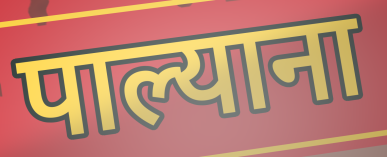
पाल्याना